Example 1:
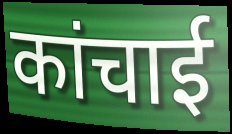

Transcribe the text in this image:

कांचाई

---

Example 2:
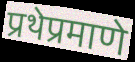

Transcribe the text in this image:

प्रथेप्रमाणे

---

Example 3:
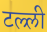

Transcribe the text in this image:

टल्ली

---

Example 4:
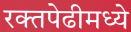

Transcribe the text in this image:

रक्तपेढीमध्ये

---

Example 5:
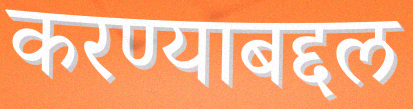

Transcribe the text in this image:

करण्याबद्दल